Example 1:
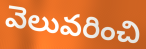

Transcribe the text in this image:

వెలువరించి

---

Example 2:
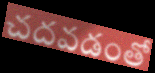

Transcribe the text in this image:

చదవడంతో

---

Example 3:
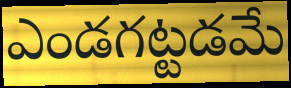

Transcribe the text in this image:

ఎండగట్టడమే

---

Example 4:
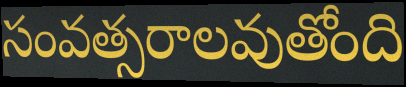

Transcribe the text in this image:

సంవత్సరాలవుతోంది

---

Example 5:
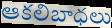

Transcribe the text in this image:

ఆకలిబాధలు